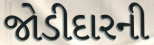
જોડીદારની